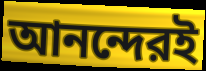
আনন্দেরই